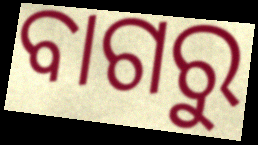
ବାଗରୁ